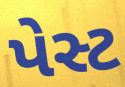
પેસ્ટ